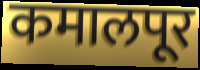
कमालपूर